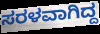
ಸರಳವಾಗಿದ್ದ